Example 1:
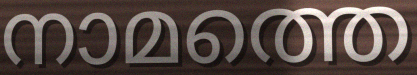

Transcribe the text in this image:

നാമത്തെ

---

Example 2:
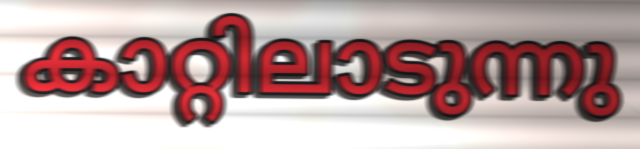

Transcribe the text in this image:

കാറ്റിലാടുന്നു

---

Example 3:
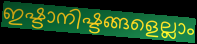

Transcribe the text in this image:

ഇഷ്ടാനിഷ്ടങ്ങളെല്ലാം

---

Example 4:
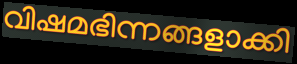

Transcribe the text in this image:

വിഷമഭിന്നങ്ങളാക്കി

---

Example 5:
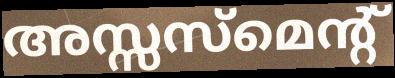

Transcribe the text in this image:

അസ്സസ്മെന്റ്